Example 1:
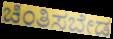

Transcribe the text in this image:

ಚಿಂತಿಸಬೇಡ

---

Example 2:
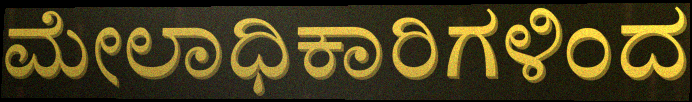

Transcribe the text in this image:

ಮೇಲಾಧಿಕಾರಿಗಳಿಂದ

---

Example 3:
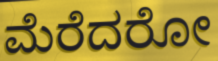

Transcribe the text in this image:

ಮೆರೆದರೋ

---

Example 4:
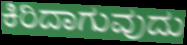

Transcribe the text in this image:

ಕಿರಿದಾಗುವುದು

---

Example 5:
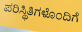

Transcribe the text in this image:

ಪರಿಸ್ಥಿತಿಗಳೊಂದಿಗೆ